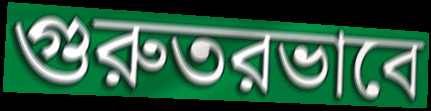
গুরুতরভাবে